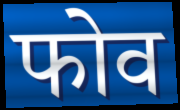
फोव